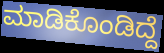
ಮಾಡಿಕೊಂಡಿದ್ದೆ